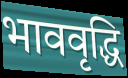
भाववृद्धि